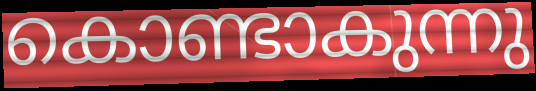
കൊണ്ടാകുന്നു